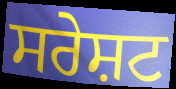
ਸਰੇਸ਼ਟ